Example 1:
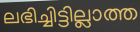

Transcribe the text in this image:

ലഭിച്ചിട്ടില്ലാത്ത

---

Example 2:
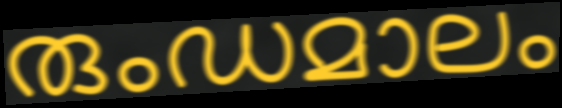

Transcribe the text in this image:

രുംഡമാലം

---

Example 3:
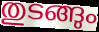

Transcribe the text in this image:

തുടങ്ങും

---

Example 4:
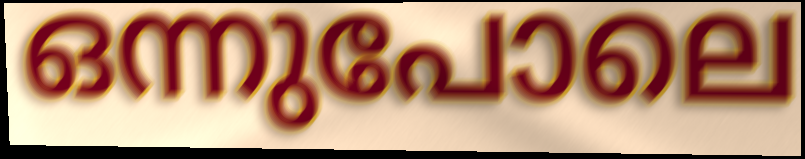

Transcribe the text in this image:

ഒന്നുപോലെ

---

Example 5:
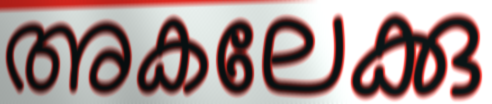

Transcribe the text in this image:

അകലേക്കു